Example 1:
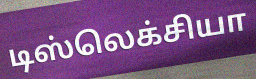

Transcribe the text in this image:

டிஸ்லெக்சியா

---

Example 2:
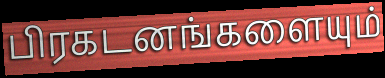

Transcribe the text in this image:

பிரகடனங்களையும்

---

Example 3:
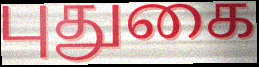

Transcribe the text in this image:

புதுகை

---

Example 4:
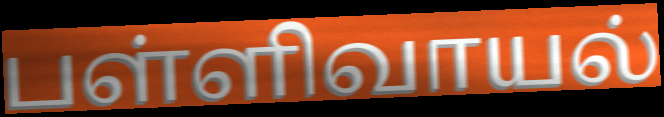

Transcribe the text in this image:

பள்ளிவாயல்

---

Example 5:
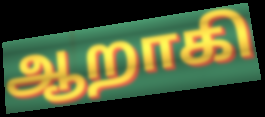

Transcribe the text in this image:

ஆறாகி